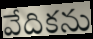
వేదికను